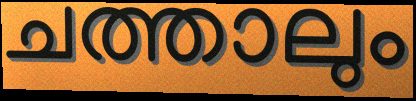
ചത്താലും